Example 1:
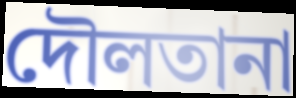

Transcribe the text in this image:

দৌলতানা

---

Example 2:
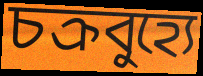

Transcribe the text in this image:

চক্রবুহ্যে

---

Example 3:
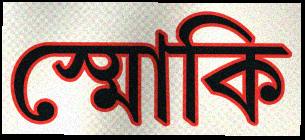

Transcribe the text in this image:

স্মোকি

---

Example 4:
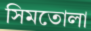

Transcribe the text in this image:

সিমতোলা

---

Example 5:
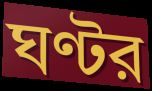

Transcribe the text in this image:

ঘণ্টর